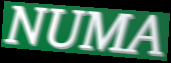
NUMA